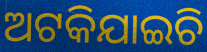
ଅଟକିଯାଇଚି